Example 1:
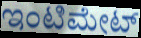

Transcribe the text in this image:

ಇಂಟಿಮೇಟ್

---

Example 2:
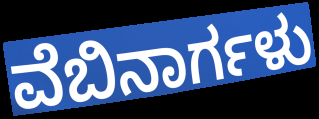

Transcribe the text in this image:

ವೆಬಿನಾರ್ಗಳು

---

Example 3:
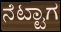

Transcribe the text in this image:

ನೆಟ್ಟಾಗ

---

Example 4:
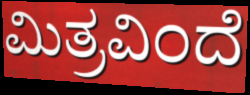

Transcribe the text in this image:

ಮಿತ್ರವಿಂದೆ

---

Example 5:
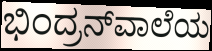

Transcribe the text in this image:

ಭಿಂದ್ರನ್‌ವಾಲೆಯ